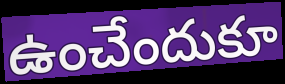
ఉంచేందుకూ